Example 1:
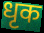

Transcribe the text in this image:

धृक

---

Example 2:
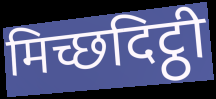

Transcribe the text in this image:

मिच्छदिट्ठी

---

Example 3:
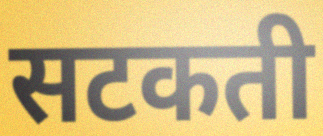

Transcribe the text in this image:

सटकती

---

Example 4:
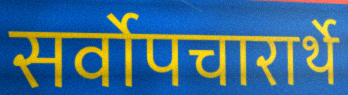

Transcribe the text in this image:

सर्वोपचारार्थे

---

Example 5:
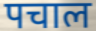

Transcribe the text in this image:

पचाल